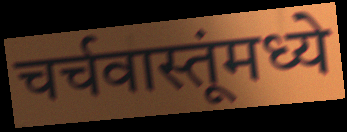
चर्चवास्तूंमध्ये